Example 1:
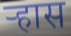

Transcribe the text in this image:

ऱ्हास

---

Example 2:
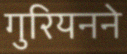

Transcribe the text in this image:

गुरियनने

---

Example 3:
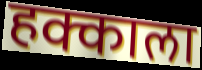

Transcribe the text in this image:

हक्काला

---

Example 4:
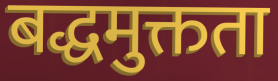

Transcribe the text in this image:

बद्धमुक्तता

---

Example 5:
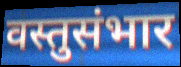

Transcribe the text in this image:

वस्तुसंभार